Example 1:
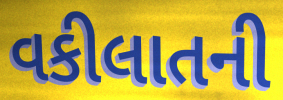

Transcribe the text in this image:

વકીલાતની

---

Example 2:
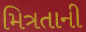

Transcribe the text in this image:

મિત્રતાની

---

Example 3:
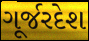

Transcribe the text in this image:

ગૂર્જરદેશ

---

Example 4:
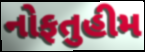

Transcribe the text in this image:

નોફતુહીમ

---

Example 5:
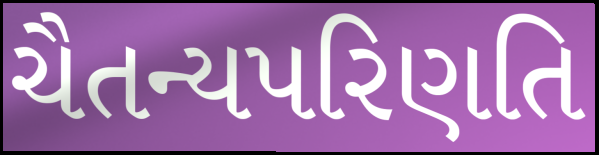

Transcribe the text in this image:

ચૈતન્યપરિણતિ